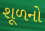
શૂળનો